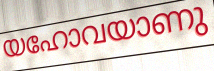
യഹോവയാണു